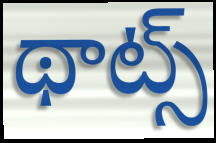
థాట్స్